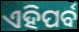
ଏହିପର୍ବ